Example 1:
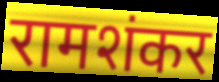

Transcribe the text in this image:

रामशंकर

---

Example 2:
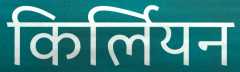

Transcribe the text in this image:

किर्लियन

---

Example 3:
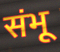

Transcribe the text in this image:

संभू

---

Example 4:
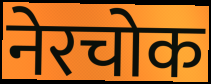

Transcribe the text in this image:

नेरचोक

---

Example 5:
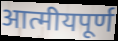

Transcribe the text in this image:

आत्मीयपूर्ण